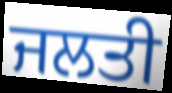
ਜਲਤੀ